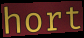
hort